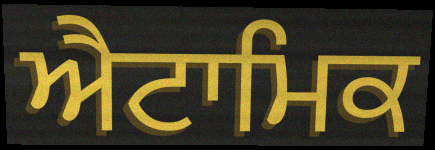
ਐਟਾਮਿਕ